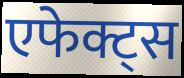
एफेक्ट्स